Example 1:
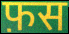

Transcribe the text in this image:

फ़स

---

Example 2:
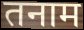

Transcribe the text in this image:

तनाम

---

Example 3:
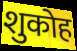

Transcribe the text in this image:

शुकोह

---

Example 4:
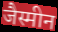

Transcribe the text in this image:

जैस्मीन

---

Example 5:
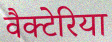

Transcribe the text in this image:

वैक्टेरिया